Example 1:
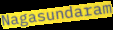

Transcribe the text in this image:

Nagasundaram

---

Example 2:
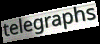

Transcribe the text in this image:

telegraphs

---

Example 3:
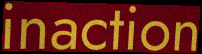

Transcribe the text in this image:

inaction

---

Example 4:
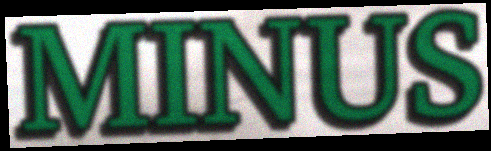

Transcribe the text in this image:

MINUS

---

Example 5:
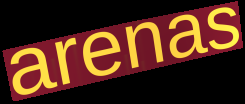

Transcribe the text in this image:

arenas